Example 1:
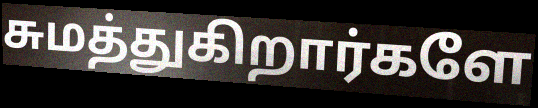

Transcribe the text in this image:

சுமத்துகிறார்களே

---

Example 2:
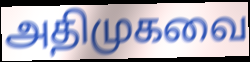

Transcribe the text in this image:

அதிமுகவை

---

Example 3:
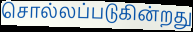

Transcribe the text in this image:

சொல்லப்படுகின்றது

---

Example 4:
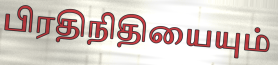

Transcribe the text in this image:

பிரதிநிதியையும்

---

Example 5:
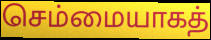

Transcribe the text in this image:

செம்மையாகத்